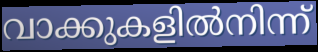
വാക്കുകളിൽനിന്ന്